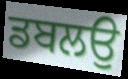
ਡਬਲਉ